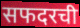
सफदरची